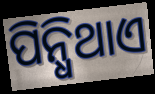
ପିନ୍ଧିଥାଏ